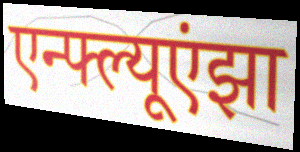
एन्फ्ल्यूएंझा